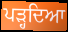
ਪੜ੍ਹਦਿਆ